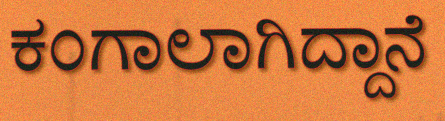
ಕಂಗಾಲಾಗಿದ್ದಾನೆ